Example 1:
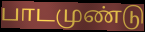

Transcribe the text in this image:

பாடமுண்டு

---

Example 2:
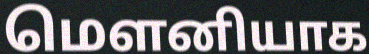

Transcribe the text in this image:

மெளனியாக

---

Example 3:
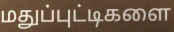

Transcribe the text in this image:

மதுப்புட்டிகளை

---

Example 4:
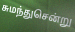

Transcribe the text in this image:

சுமந்துசென்று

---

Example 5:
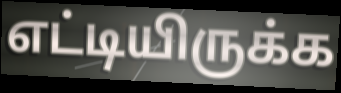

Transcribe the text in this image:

எட்டியிருக்க